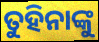
ତୁହିନାଙ୍କୁ